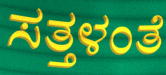
ಸತ್ತಳಂತೆ